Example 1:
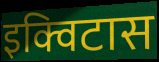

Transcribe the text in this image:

इक्विटास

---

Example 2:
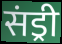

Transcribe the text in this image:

संड्री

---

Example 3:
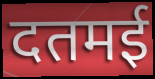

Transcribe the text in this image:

दतमई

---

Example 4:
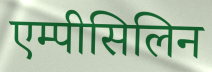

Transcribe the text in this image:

एम्पीसिलिन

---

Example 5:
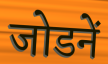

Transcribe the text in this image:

जोडनें